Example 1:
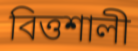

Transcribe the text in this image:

বিত্তশালী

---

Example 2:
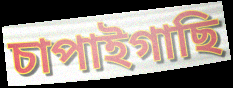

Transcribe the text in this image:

চাপাইগাছি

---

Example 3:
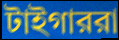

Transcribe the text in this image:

টাইগাররা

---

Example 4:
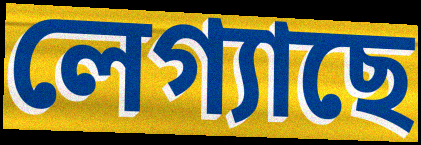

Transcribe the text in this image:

লেগ্যাছে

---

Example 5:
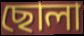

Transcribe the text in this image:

ছোলা